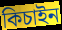
কিচাইন